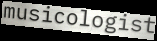
musicologist